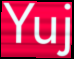
Yuj